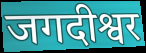
जगदीश्वर